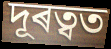
দূৰত্বত